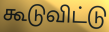
கூடுவிட்டு